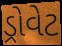
ડ્રોવેટ